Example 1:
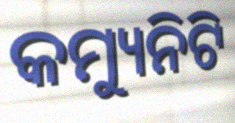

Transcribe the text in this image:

କମ୍ୟୁନିଟି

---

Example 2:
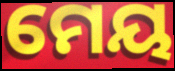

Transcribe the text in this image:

ମେୟ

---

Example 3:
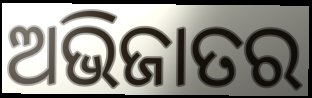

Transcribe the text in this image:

ଅଭିଜାତର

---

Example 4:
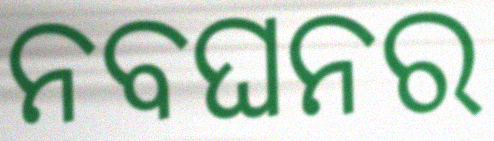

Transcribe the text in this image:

ନବଘନର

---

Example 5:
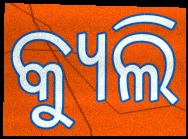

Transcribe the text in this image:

କ୍ୟୁଲି